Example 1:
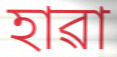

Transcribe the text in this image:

হাৱা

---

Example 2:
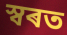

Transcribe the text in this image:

স্বৰত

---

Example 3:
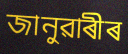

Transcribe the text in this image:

জানুৱাৰীৰ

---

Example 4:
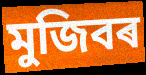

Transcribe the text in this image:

মুজিবৰ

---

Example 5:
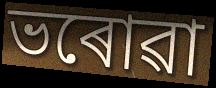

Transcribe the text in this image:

ভৰোৱা